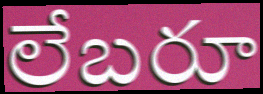
లేబరూ